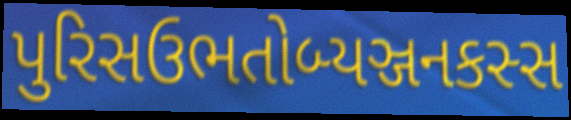
પુરિસઉભતોબ્યઞ્જનકસ્સ